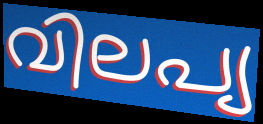
വിലപ്യ